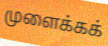
முளைக்கக்